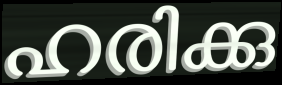
ഹരിക്കു